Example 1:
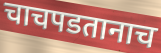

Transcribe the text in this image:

चाचपडतानाच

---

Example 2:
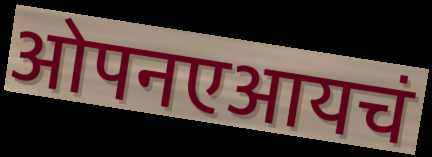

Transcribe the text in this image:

ओपनएआयचं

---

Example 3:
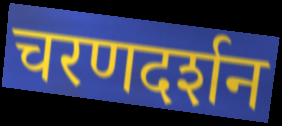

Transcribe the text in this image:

चरणदर्शन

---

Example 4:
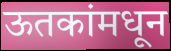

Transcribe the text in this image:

ऊतकांमधून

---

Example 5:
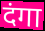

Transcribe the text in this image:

दंगा